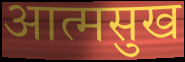
आत्मसुख